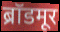
ब्रॉडमूर